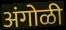
अंगोळी